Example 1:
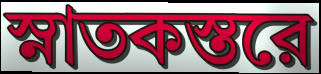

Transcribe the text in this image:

স্নাতকস্তরে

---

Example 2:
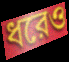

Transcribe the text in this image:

ধরেও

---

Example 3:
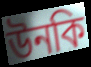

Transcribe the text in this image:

উনকি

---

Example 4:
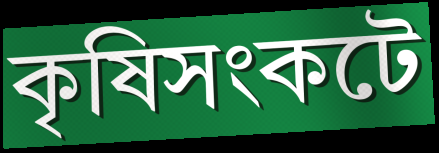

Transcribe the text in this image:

কৃষিসংকটে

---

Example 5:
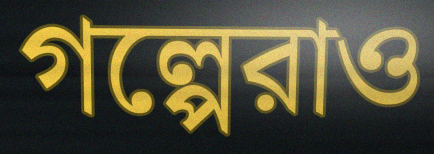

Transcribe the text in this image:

গল্পেরাও